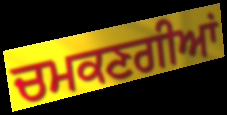
ਚਮਕਣਗੀਆਂ